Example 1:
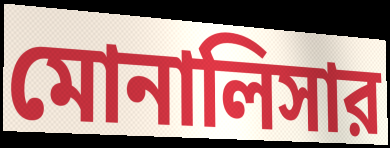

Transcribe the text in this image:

মোনালিসার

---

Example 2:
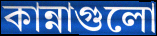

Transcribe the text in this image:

কান্নাগুলো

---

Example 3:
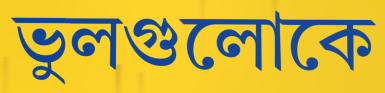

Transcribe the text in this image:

ভুলগুলোকে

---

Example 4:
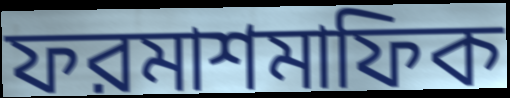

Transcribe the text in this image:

ফরমাশমাফিক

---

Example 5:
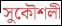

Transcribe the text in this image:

সুকৌশলী